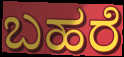
ಬಹರೆ